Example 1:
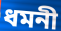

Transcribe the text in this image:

ধমনী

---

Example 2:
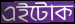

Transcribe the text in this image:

এইটোক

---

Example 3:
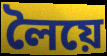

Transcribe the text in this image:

লৈয়ে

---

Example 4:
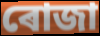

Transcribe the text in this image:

ৰোজা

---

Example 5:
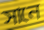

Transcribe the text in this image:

সানে